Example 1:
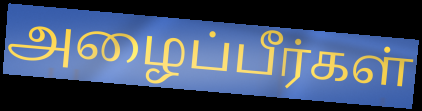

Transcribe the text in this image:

அழைப்பீர்கள்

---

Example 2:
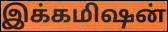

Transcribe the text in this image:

இக்கமிஷன்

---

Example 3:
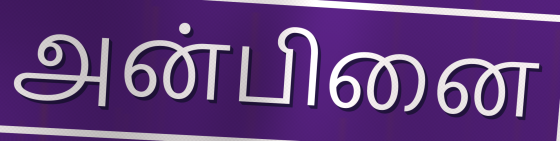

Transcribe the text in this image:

அன்பினை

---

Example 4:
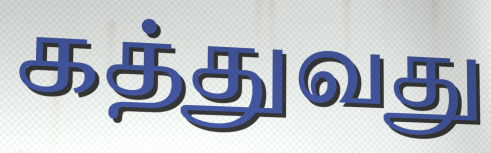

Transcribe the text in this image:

கத்துவது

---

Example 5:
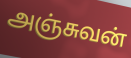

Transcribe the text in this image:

அஞ்சுவன்